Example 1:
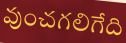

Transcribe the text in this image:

వుంచగలిగేది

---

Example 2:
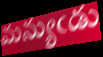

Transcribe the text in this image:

మన్యుఁడు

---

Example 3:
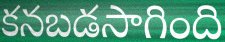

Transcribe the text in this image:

కనబడసాగింది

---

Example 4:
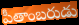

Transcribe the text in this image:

పీతాంబరుడు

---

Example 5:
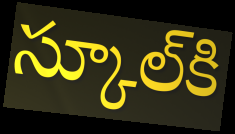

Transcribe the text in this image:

స్కూల్‌కి